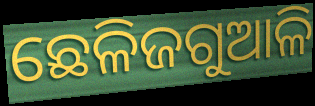
ଛେଳିଜଗୁଆଳି